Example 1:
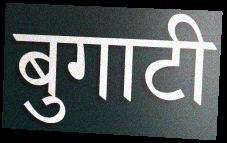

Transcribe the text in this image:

बुगाटी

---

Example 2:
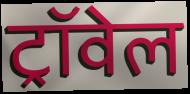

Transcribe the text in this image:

ट्रॉवेल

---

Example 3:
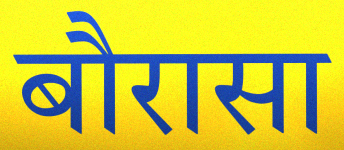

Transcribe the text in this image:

बौरासा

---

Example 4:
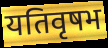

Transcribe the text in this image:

यतिवृषभ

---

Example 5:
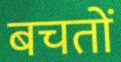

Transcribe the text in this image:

बचतों